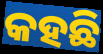
କହଛି